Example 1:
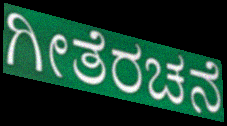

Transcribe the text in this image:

ಗೀತೆರಚನೆ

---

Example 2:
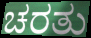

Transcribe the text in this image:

ಚರತು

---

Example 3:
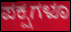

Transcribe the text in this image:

ಪಕ್ಷಗಳೂ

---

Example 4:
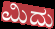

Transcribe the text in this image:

ಮಿದು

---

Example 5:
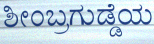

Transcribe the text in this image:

ಶೀಂಬ್ರಗುಡ್ಡೆಯ